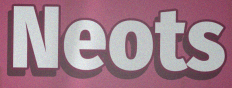
Neots